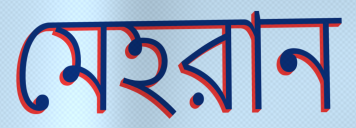
মেহরান